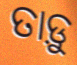
ତାଡ଼ୁ